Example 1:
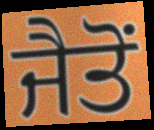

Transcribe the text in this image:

ਜੈਤੋਂ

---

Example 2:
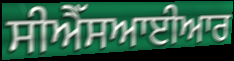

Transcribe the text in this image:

ਸੀਐੱਸਆਈਆਰ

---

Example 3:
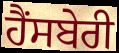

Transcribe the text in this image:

ਹੈਂਸਬੇਰੀ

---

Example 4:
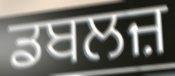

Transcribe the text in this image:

ਡਬਲਜ਼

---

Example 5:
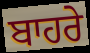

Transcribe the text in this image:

ਬਾਹਰੇ